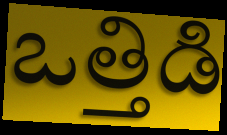
ఒత్తిడి